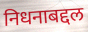
निधनाबद्दल